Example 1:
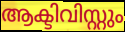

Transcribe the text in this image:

ആക്ടിവിസ്റ്റും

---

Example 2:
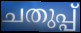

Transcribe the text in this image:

ചതുപ്പ്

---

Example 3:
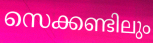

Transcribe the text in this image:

സെക്കണ്ടിലും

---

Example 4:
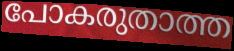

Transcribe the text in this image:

പോകരുതാത്ത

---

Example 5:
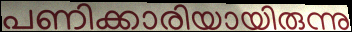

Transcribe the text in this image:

പണിക്കാരിയായിരുന്നു